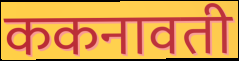
ककनावती